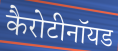
कैरोटीनॉयड